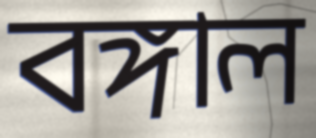
বঙ্গাল